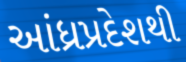
આંધ્રપ્રદેશથી